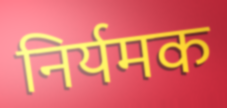
निर्यमक